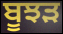
ਬੂਝੜ